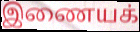
இணையக்